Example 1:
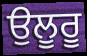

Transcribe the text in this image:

ਉਲੂਰੂ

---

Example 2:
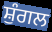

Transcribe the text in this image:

ਸ਼ੁੰਗਲ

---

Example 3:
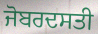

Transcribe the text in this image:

ਜੋਬਰਦਸਤੀ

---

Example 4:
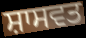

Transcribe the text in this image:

ਸ਼ਾਸਵਤ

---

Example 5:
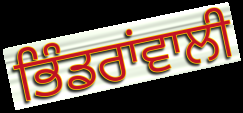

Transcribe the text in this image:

ਭਿੰਡਰਾਂਵਾਲੀ